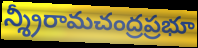
న్శ్రీరామచంద్రప్రభూ